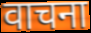
वाचना